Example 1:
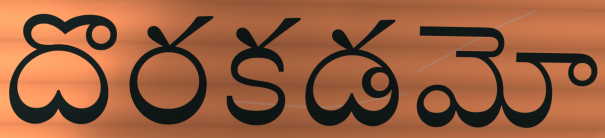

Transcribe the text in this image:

దొరకడమో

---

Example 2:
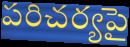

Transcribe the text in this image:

పరిచర్యపై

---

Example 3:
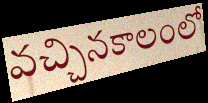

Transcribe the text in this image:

వచ్చినకాలంలో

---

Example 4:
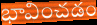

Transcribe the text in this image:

భావించడం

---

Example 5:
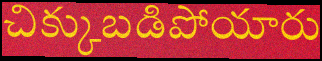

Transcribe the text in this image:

చిక్కుబడిపోయారు